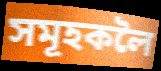
সমূহকলৈ